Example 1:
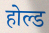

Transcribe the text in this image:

होल्ड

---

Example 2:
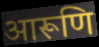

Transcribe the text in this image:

आरूणि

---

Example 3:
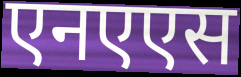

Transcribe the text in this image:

एनएएस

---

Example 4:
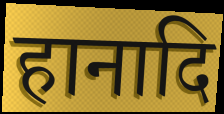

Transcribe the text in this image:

हानादि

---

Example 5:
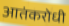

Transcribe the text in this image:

आतंकरोधी